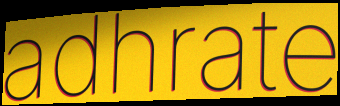
adhrate